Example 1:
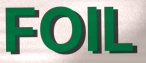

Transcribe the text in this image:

FOIL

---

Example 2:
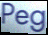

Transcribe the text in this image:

Peg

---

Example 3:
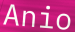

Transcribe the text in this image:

Anio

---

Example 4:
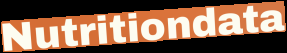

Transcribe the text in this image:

Nutritiondata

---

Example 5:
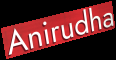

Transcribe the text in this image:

Anirudha